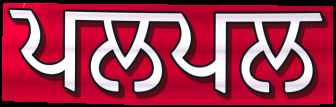
ਪਲਪਲ